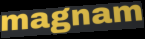
magnam